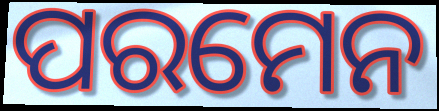
ପରମେନ